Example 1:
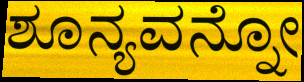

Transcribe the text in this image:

ಶೂನ್ಯವನ್ನೋ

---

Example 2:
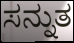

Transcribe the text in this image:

ಸನ್ನುತ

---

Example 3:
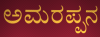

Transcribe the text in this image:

ಅಮರಪ್ಪನ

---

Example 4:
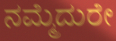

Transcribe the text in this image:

ನಮ್ಮೆದುರೇ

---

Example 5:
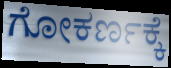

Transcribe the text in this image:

ಗೋಕರ್ಣಕ್ಕೆ